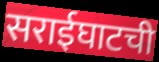
सराईघाटची